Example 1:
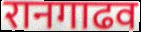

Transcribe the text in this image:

रानगाढव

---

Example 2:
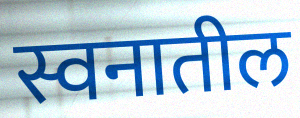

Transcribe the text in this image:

स्वनातील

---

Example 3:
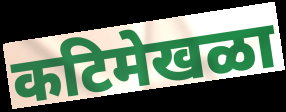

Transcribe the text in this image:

कटिमेखळा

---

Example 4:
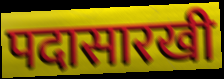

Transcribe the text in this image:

पदासारखी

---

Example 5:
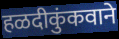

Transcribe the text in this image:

हळदीकुंकवाने